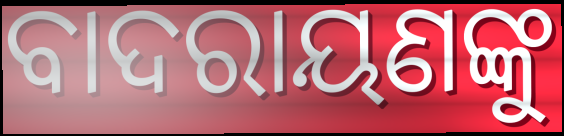
ବାଦରାୟଣଙ୍କୁ